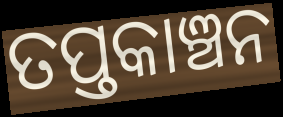
ତପ୍ତକାଞ୍ଚନ